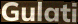
Gulati